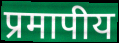
प्रमापीय